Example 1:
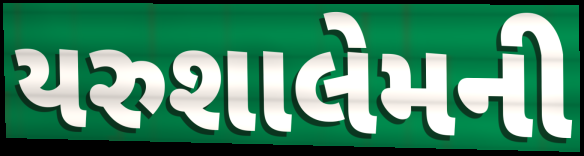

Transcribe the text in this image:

યરુશાલેમની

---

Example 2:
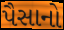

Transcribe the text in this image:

પૈસાનો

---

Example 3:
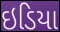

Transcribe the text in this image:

ઇડિયા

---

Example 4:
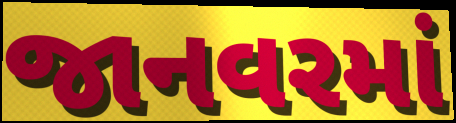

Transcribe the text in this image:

જાનવરમાં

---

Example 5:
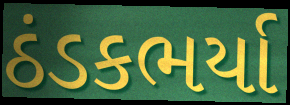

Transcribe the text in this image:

ઠંડકભર્યા